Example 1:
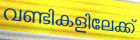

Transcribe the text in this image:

വണ്ടികളിലേക്ക്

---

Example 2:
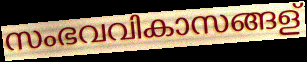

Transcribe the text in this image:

സംഭവവികാസങ്ങള്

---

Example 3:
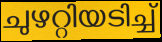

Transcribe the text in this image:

ചുഴറ്റിയടിച്ച്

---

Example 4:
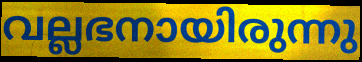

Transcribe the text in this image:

വല്ലഭനായിരുന്നു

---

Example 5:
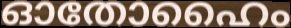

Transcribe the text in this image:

ഓതോഹൈം